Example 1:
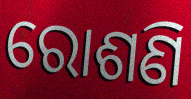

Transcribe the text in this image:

ରୋଶଣି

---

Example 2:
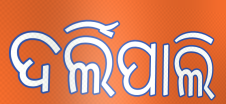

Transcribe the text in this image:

ଦର୍ଲିପାଲି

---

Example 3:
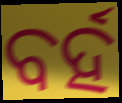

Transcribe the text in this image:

ବର୍ହ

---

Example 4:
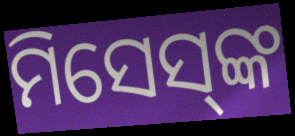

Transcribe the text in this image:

ମିସେସ୍‍ଙ୍କ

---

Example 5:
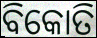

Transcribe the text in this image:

ବିକୋତି